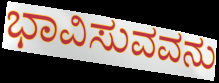
ಭಾವಿಸುವವನು